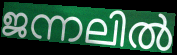
ജന്നലിൽ